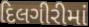
દિલગીરીમાં